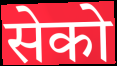
सेको